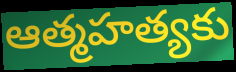
ఆత్మహత్యకు